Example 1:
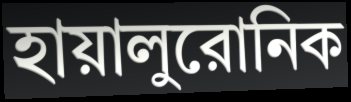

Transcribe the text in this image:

হায়ালুরোনিক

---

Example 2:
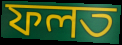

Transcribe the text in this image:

ফলত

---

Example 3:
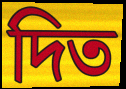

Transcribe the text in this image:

দিত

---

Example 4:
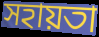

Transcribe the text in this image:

সহায়তা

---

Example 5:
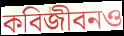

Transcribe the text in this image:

কবিজীবনও